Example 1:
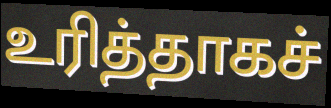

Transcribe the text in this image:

உரித்தாகச்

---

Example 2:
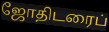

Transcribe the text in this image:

ஜோதிடரைப்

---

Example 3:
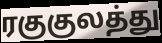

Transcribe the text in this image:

ரகுகுலத்து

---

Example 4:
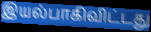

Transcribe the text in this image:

இயல்பாகிவிட்டது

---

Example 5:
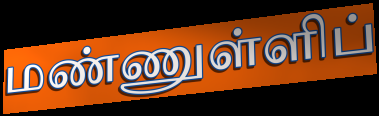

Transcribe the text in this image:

மண்ணுள்ளிப்